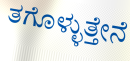
ತಗೊಳ್ಳುತ್ತೇನೆ